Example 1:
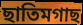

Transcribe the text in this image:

ছাতিমগাছ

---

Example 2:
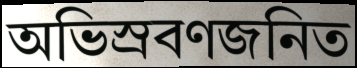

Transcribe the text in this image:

অভিস্রবণজনিত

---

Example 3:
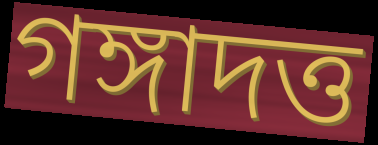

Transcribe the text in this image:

গঙ্গাদত্ত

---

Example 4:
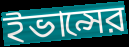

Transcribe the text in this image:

ইভান্সের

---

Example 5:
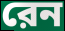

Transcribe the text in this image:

রেন